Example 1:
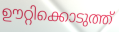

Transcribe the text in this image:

ഊറ്റിക്കൊടുത്ത്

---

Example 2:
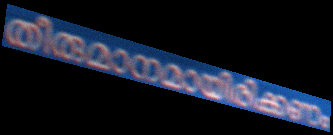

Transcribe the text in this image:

തീരുമാനമായിരിക്കണം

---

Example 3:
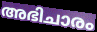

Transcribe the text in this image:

അഭിചാരം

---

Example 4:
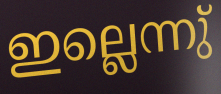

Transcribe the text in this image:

ഇല്ലെന്നു്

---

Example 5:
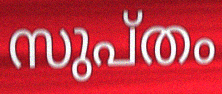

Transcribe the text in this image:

സുപ്തം